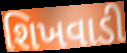
શિખવાડી